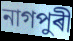
নাগপুৰী